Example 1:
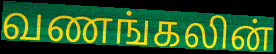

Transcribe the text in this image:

வணங்கலின்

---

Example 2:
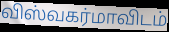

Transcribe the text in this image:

விஸ்வகர்மாவிடம்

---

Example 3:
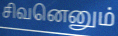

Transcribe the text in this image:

சிவனெனும்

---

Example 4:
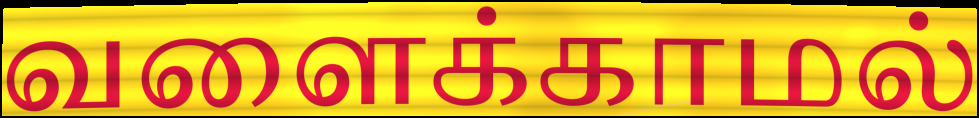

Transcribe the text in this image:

வளைக்காமல்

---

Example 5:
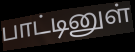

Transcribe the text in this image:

பாட்டினுள்